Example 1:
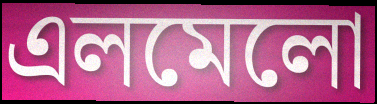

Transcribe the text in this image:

এলমেলো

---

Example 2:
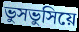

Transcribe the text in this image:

ভুসভুসিয়ে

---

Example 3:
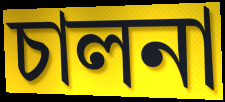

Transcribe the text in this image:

চালনা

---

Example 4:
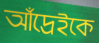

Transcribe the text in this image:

আঁদ্রেইকে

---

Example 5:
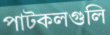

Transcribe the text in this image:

পাটকলগুলি